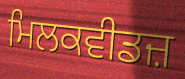
ਮਿਲਕਵੀਡਜ਼